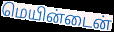
மெயின்டைன்